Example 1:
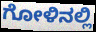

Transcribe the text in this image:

ಗೋಳಿನಲ್ಲಿ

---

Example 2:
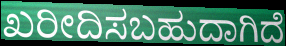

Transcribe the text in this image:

ಖರೀದಿಸಬಹುದಾಗಿದೆ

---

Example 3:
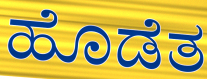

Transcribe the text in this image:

ಹೊಡೆತ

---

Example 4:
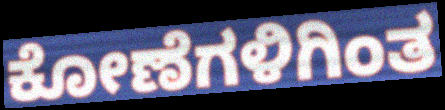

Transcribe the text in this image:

ಕೋಣೆಗಳಿಗಿಂತ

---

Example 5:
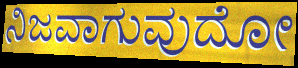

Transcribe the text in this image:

ನಿಜವಾಗುವುದೋ